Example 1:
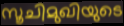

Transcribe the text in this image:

സൂചിമുഖിയുടെ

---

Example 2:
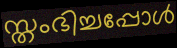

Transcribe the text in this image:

സ്തംഭിച്ചപ്പോൾ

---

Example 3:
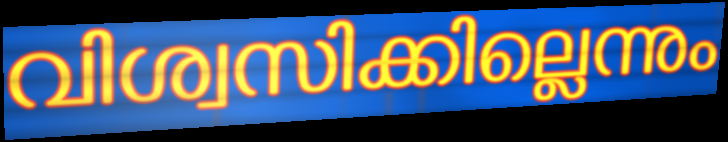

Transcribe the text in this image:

വിശ്വസിക്കില്ലെന്നും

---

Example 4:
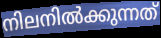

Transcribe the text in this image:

നിലനിൽക്കുന്നത്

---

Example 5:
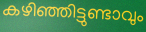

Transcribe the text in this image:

കഴിഞ്ഞിട്ടുണ്ടാവും